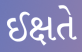
ઈક્ષતે